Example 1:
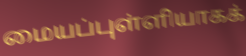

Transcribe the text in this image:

மையப்புள்ளியாகக்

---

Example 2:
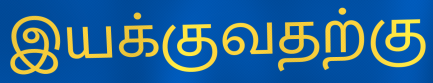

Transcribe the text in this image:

இயக்குவதற்கு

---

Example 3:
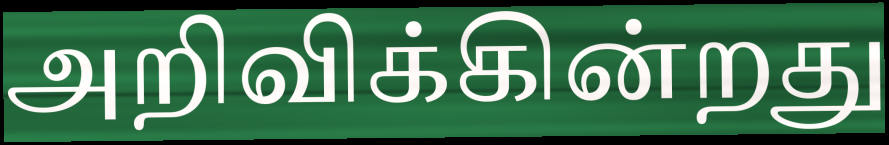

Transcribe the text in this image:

அறிவிக்கின்றது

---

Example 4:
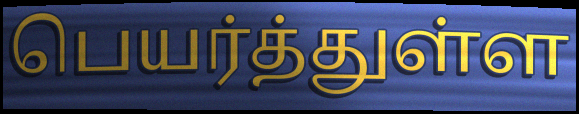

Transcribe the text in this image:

பெயர்த்துள்ள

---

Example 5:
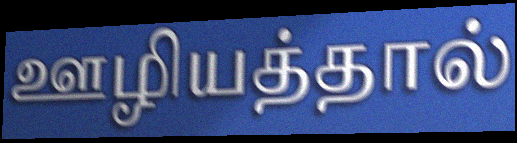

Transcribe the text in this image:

ஊழியத்தால்